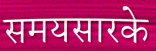
समयसारके